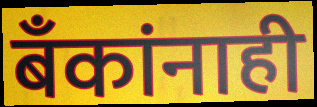
बँकांनाही